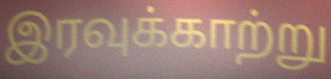
இரவுக்காற்று